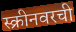
स्क्रीनवरची